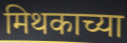
मिथकाच्या